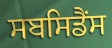
ਸਬਸਿਡੈਂਸ